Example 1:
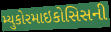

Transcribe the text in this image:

મ્યુકોરમાઇકોસિસની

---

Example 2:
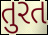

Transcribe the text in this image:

તુરત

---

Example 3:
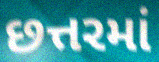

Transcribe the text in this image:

છત્તરમાં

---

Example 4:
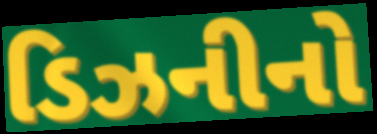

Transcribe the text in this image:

ડિઝનીનો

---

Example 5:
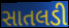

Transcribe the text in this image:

સાતલડી